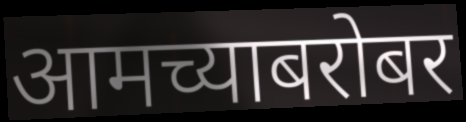
आमच्याबरोबर